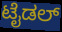
ಟೈಡಲ್